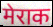
मेराक